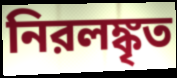
নিরলঙ্কৃত